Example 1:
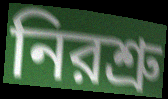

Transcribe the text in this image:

নিরশ্রু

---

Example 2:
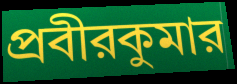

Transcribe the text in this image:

প্রবীরকুমার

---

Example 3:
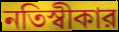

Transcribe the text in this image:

নতিস্বীকার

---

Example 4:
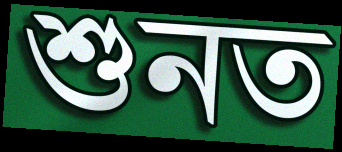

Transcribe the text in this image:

শুনত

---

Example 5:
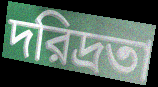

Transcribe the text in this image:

দরিদ্রতা